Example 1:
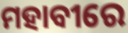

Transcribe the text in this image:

ମହାବୀରେ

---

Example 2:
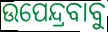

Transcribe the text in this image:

ଉପେନ୍ଦ୍ରବାବୁ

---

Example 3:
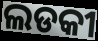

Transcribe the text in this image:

ଲଡକୀ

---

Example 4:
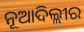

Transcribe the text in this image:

ନୂଆଦିଲ୍ଲୀର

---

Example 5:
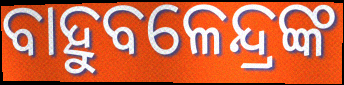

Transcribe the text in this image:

ବାହୁବଳେନ୍ଦ୍ରଙ୍କ